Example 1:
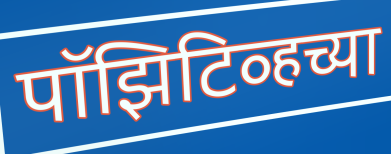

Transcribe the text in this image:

पॉझिटिव्हच्या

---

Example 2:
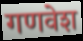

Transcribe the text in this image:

गणवेश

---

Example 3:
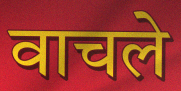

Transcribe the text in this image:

वाचले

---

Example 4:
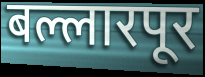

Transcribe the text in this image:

बल्लारपूर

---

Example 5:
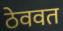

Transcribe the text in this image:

ठेववत